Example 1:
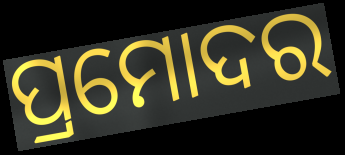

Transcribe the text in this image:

ପ୍ରମୋଦର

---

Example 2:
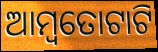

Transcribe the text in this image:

ଆମ୍ବତୋଟାଟି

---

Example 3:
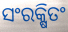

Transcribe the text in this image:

ସଂରକ୍ଷିତଂ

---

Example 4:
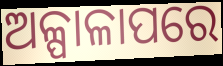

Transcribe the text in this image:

ଅଳ୍ପାଳାପରେ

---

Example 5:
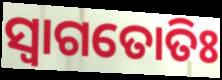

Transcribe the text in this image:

ସ୍ଵାଗତୋତିଃ